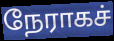
நேராகச்